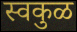
स्वकुळ